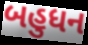
બહુધન